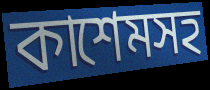
কাশেমসহ